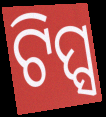
ଟିପ୍ସ